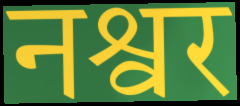
नश्वर